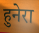
हुनेरा